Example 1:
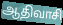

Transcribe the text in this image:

ஆதிவாசி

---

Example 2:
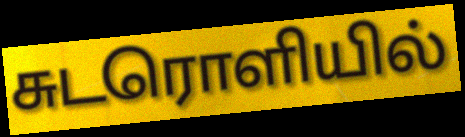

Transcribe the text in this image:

சுடரொளியில்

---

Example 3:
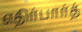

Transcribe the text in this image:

எதிர்பார்த்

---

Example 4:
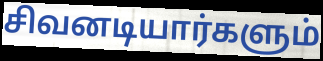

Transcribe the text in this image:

சிவனடியார்களும்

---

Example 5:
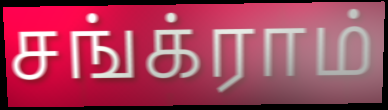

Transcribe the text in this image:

சங்க்ராம்